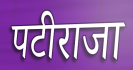
पटीराजा